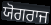
ਯੋਗਰਾਜ